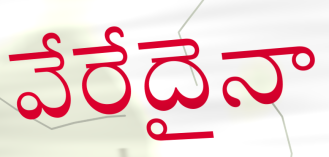
వేరేదైనా